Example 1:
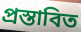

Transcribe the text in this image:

প্রস্তাবিত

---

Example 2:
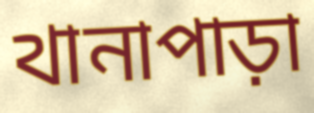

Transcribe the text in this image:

থানাপাড়া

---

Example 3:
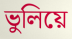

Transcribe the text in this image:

ভুলিয়ে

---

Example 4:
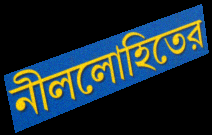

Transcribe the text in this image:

নীললোহিতের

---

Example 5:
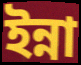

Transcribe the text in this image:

ইন্না